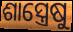
ଶାସ୍ତ୍ରେଷୁ